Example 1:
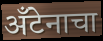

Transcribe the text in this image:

अँटेनाचा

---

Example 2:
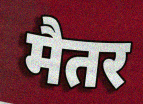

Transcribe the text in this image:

मैतर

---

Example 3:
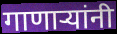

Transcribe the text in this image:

गाणाऱ्यांनी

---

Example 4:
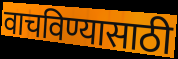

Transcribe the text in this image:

वाचविण्यासाठी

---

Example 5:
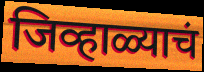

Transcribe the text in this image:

जिव्हाळ्याचं